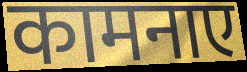
कामनाए